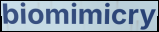
biomimicry